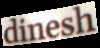
dinesh